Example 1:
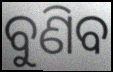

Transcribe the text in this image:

ବୁଣିବ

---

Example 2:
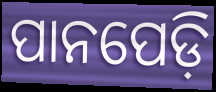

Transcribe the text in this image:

ପାନପେଡ଼ି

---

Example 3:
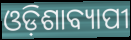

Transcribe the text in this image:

ଓଡ଼ିଶାବ୍ୟାପୀ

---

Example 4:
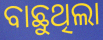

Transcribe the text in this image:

ବାଛୁଥିଲା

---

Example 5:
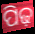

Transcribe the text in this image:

ପିଢ଼